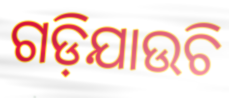
ଗଡ଼ିଯାଉଚି